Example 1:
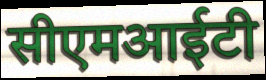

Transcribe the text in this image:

सीएमआईटी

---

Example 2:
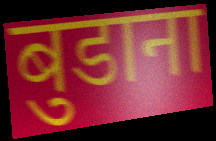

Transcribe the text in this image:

बुडाना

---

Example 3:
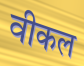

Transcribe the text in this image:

वीकल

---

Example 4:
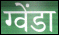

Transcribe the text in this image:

ग्वेंडा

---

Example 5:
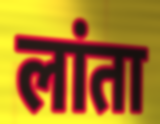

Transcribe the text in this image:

लांता